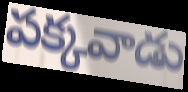
పక్కవాడు